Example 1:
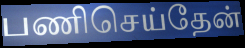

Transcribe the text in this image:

பணிசெய்தேன்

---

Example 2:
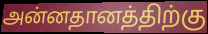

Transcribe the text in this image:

அன்னதானத்திற்கு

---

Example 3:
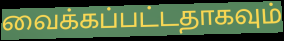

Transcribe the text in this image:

வைக்கப்பட்டதாகவும்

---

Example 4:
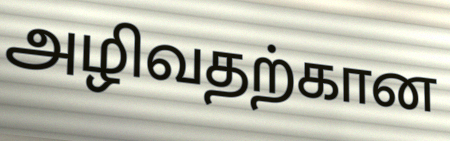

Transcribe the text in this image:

அழிவதற்கான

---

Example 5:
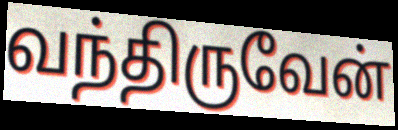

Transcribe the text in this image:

வந்திருவேன்